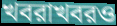
খবরাখবরও